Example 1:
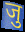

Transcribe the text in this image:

जु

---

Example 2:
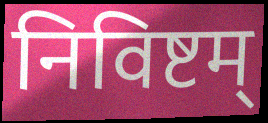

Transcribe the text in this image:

निविष्टम्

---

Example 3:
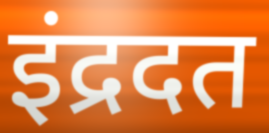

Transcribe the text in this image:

इंद्रदत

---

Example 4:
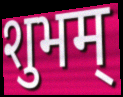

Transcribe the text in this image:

शुभम्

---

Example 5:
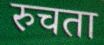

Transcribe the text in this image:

रुचता